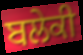
ਬਲੇਕੀ